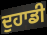
ਦੁਹਾਡੀ